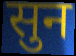
सुन